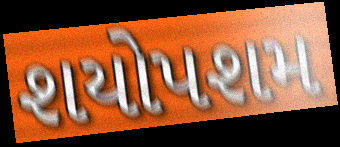
શયોપશમ